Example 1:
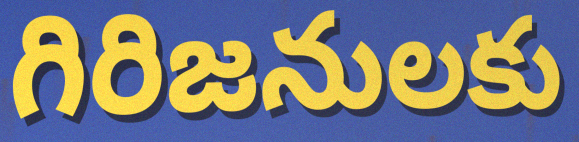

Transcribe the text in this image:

గిరిజనులకు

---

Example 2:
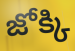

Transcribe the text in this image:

జోక్కి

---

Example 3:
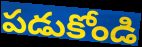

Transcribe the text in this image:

పడుకోండి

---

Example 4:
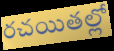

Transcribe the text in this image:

రచయితల్లో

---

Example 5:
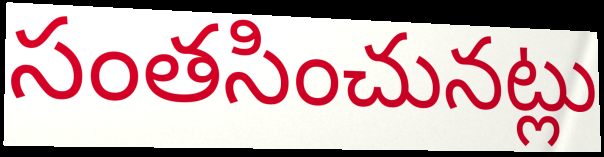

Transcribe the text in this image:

సంతసించునట్లు